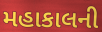
મહાકાલની